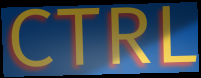
CTRL